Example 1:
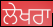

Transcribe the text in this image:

ਲੇਖਰਾ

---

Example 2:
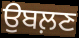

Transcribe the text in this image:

ਉਬਲ਼ਣ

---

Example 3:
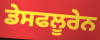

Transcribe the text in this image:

ਡੇਸਫਲੂਰੇਨ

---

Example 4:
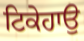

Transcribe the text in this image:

ਟਿਕੇਹਾਉ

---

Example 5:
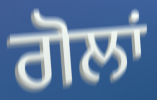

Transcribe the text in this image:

ਗੋਲਾਂ